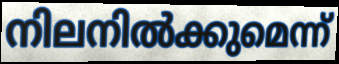
നിലനിൽക്കുമെന്ന്